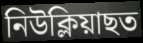
নিউক্লিয়াছত